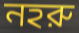
নহৰু